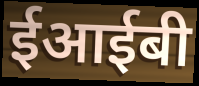
ईआईबी